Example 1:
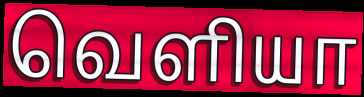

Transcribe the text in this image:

வெளியா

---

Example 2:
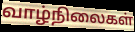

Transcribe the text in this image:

வாழ்நிலைகள்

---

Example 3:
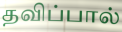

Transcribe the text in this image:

தவிப்பால்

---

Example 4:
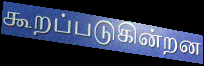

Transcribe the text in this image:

கூறப்படுகின்றன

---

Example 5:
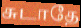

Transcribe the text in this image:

சுடாதே